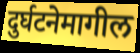
दुर्घटनेमागील